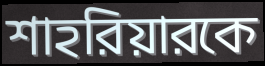
শাহরিয়ারকে